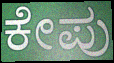
ಕೇಪು